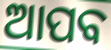
ଆପବ